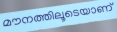
മൗനത്തിലൂടെയാണ്